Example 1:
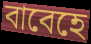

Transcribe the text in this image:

বাবেহে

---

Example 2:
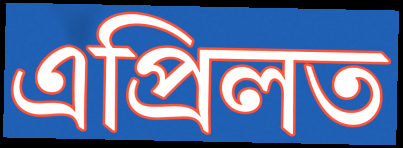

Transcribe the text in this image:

এপ্ৰিলত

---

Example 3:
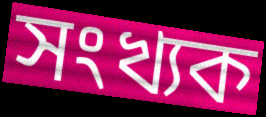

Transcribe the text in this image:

সংখ্যক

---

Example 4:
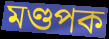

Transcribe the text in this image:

মণ্ডপক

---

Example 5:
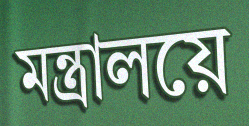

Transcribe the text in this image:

মন্ত্ৰালয়ে